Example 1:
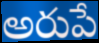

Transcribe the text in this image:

అరుపే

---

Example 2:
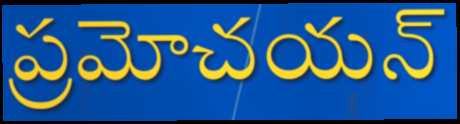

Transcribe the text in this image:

ప్రమోచయన్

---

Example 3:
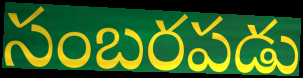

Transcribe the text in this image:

సంబరపడు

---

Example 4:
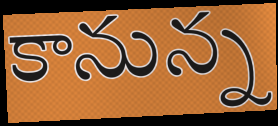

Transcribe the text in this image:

కానున్న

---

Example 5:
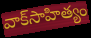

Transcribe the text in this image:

వాక్‌సాహిత్యం